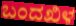
ಬಂದಖಿಳ